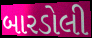
બારડોલી